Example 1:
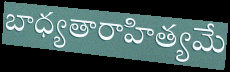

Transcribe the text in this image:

బాధ్యతారాహిత్యమే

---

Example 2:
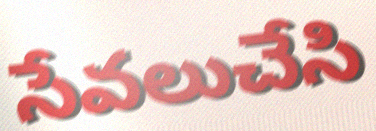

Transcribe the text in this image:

సేవలుచేసి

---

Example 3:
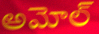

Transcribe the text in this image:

అమోల్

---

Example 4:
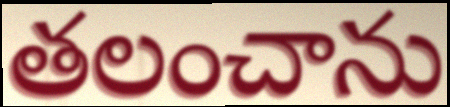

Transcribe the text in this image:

తలంచాను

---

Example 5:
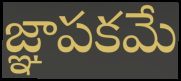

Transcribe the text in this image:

జ్ఞాపకమే